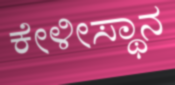
ಕೇಳೀಸ್ಥಾನ